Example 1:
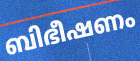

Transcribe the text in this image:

ബിഭീഷണം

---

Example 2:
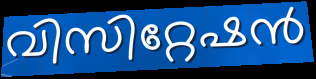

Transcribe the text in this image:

വിസിറ്റേഷൻ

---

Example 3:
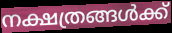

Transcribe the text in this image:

നക്ഷത്രങ്ങൾക്ക്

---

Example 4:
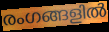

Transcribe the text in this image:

രംഗങ്ങളിൽ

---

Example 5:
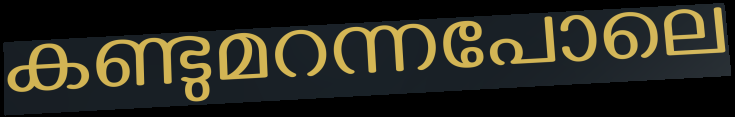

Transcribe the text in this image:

കണ്ടുമറന്നപോലെ